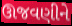
ઊજવણીને